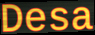
Desa